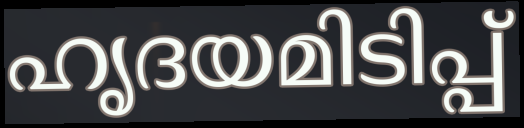
ഹൃദയമിടിപ്പ്